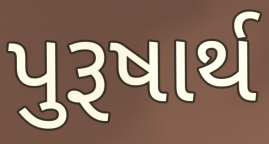
પુરૂષાર્થ